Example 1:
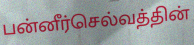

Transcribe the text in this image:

பன்னீர்செல்வத்தின்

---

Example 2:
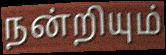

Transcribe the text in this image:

நன்றியும்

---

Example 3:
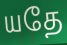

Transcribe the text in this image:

யதே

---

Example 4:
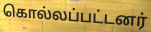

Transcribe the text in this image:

கொல்லப்பட்டனர்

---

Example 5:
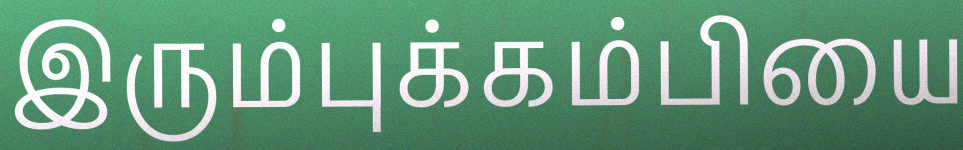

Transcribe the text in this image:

இரும்புக்கம்பியை